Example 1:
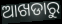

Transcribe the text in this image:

ଆଖଡାରୁ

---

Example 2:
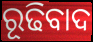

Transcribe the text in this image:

ରୂଢିବାଦ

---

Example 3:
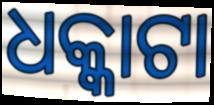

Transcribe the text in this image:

ଧକ୍କାଟା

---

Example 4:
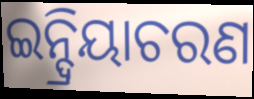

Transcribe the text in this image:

ଇନ୍ଦ୍ରିୟାଚରଣ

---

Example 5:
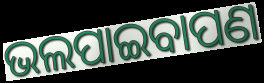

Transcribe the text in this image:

ଭଲପାଇବାପଣ